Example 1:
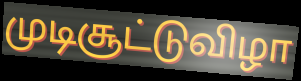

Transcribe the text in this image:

முடிசூட்டுவிழா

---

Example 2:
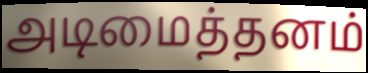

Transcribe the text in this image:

அடிமைத்தனம்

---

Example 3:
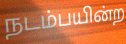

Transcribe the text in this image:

நடம்பயின்ற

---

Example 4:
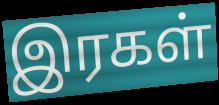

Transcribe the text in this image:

இரகள்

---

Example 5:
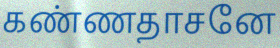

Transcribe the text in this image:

கண்ணதாசனே